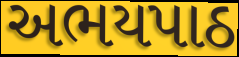
અભયપાઠ